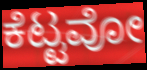
ಕೆಟ್ಟವೋ